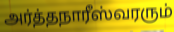
அர்த்தநாரீஸ்வரரும்